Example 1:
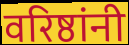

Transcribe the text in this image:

वरिष्ठांनी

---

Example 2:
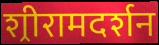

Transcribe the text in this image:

श्रीरामदर्शन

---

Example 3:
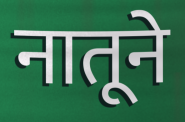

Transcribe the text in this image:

नातूने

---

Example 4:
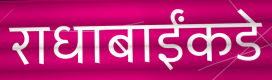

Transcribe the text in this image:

राधाबाईंकडे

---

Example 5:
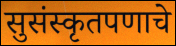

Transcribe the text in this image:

सुसंस्कृतपणाचे